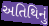
અતિથિનું